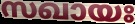
സഖായഃ